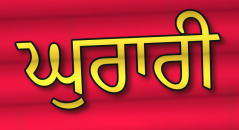
ਘੁਰਾਰੀ